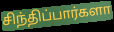
சிந்திப்பார்களா